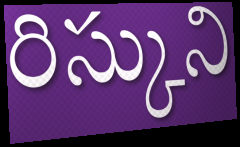
రిస్కుని